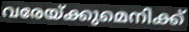
വരേയ്ക്കുമെനിക്ക്